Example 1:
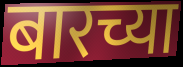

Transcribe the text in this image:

बारच्या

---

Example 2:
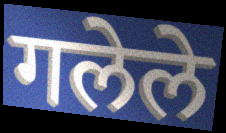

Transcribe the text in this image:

गलेले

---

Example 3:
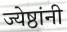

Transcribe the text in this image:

ज्येष्ठांनी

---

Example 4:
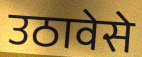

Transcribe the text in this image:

उठावेसे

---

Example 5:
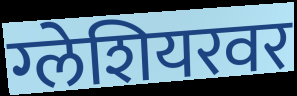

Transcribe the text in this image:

ग्लेशियरवर